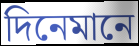
দিনেমানে